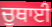
ਚੁਥਾਈ